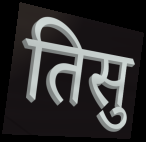
तिसु